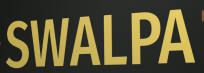
SWALPA